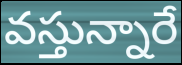
వస్తున్నారే